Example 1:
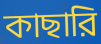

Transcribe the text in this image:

কাছারি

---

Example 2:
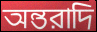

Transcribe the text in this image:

অন্তরাদি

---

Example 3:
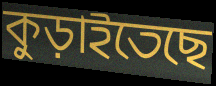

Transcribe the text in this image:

কুড়াইতেছে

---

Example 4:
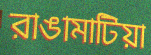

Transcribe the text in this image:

রাঙামাটিয়া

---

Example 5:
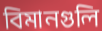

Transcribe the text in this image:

বিমানগুলি